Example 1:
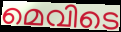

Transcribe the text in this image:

മെവിടെ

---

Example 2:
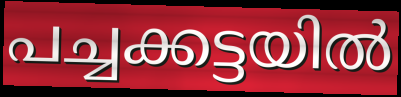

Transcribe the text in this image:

പച്ചക്കട്ടയിൽ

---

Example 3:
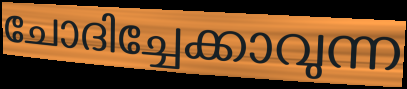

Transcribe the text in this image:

ചോദിച്ചേക്കാവുന്ന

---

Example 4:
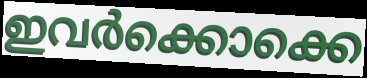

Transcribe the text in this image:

ഇവർക്കൊക്കെ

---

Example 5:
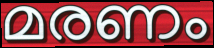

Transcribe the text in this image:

മരണം